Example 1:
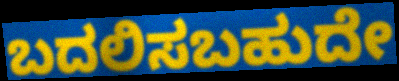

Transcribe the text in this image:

ಬದಲಿಸಬಹುದೇ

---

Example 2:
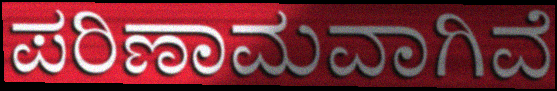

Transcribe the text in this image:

ಪರಿಣಾಮವಾಗಿವೆ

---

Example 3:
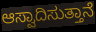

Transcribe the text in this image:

ಆಸ್ವಾದಿಸುತ್ತಾನೆ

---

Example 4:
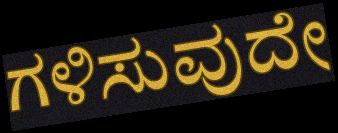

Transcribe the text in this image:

ಗಳಿಸುವುದೇ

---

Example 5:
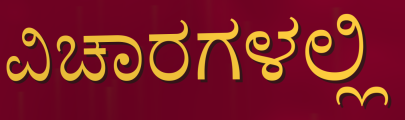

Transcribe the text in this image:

ವಿಚಾರಗಳಲ್ಲಿ